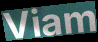
Viam